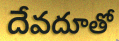
దేవదూతో